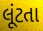
લૂંટતા